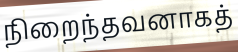
நிறைந்தவனாகத்